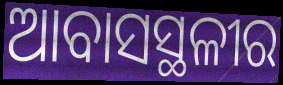
ଆବାସସ୍ଥଳୀର